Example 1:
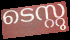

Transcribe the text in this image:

ടെസ്റ്റു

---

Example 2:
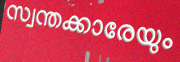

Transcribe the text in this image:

സ്വന്തക്കാരേയും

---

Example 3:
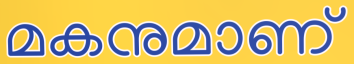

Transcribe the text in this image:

മകനുമാണ്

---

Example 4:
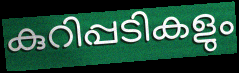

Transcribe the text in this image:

കുറിപ്പടികളും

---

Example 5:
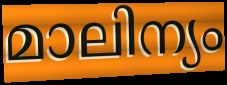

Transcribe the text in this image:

മാലിന്യം